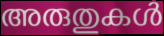
അരുതുകൾ